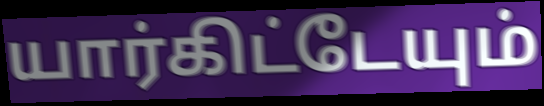
யார்கிட்டேயும்